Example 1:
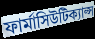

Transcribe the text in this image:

ফার্মাসিউটিক্যাল্স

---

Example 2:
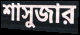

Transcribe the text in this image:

শাসুজার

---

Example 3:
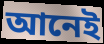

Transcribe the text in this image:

আনেই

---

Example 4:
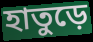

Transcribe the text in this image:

হাতুড়ে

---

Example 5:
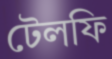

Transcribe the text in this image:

টেলফি